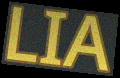
LIA